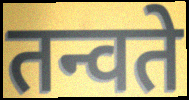
तन्वते